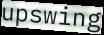
upswing